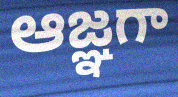
ఆజ్ఞగా